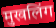
मुखलिंग